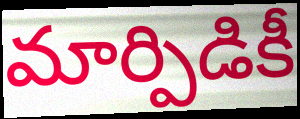
మార్పిడికీ